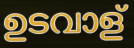
ഉടവാള്